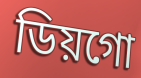
ডিয়গো